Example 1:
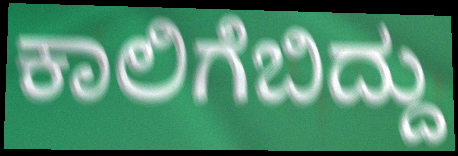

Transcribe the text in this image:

ಕಾಲಿಗೆಬಿದ್ದು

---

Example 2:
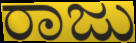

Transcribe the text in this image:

ರಾಜು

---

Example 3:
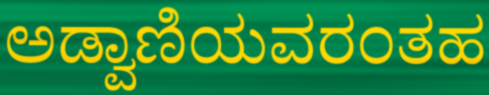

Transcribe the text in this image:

ಅಡ್ವಾಣಿಯವರಂತಹ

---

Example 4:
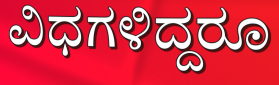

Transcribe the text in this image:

ವಿಧಗಳಿದ್ದರೂ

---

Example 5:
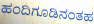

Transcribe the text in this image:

ಹಂದಿಗೂಡಿನಂತಹ